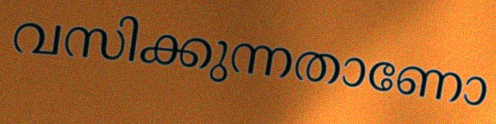
വസിക്കുന്നതാണോ